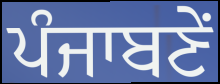
ਪੰਜਾਬਣੇਂ